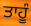
ਤਾਹੂੰ